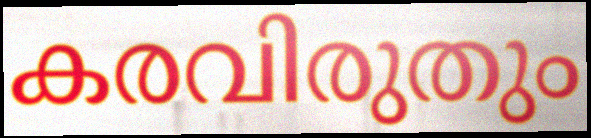
കരവിരുതും